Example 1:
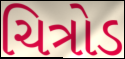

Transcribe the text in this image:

ચિત્રોડ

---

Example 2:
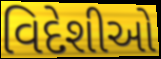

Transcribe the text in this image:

વિદેશીઓ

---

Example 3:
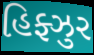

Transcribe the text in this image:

હિફ્ઝુર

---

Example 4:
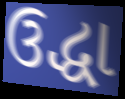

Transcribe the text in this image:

ઉદ્ધા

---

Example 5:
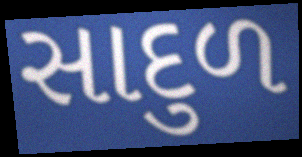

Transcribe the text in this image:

સાદુળ